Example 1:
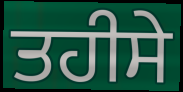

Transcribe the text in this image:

ਤਹੀਸੇ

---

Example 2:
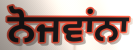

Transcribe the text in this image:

ਨੋਜਵਾਂਨਾ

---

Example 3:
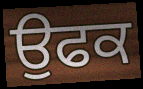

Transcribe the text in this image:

ਉਫਕ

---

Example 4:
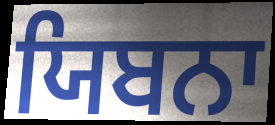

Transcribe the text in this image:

ਯਿਬਨਾ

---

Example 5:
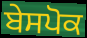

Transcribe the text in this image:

ਬੇਸਪੋਕ